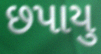
છપાયુ